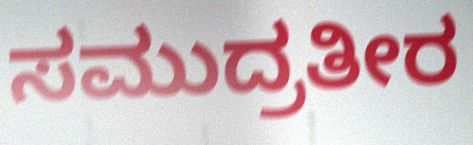
ಸಮುದ್ರತೀರ